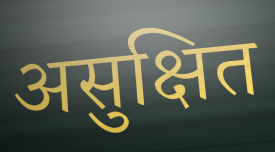
असुक्षित